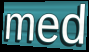
med